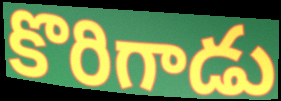
కొరిగాడు